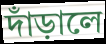
দাঁড়ালে